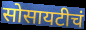
सोसायटीचं